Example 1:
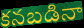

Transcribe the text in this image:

కనబడినా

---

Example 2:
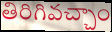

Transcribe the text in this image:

తిరిగివచ్చాం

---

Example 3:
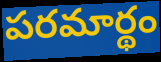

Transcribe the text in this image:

పరమార్థం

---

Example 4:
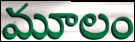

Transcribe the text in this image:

మూలం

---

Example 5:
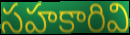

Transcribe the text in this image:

సహకారివి